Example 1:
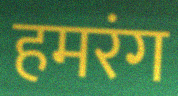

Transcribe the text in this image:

हमरंग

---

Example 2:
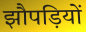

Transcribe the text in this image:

झौपड़ियों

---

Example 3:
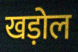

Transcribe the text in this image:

खड़ोल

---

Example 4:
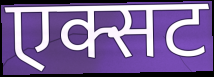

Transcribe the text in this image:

एक्सट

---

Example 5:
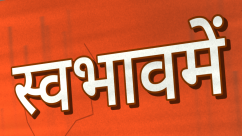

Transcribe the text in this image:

स्वभावमें